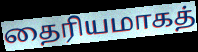
தைரியமாகத்